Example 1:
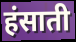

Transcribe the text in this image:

हंसाती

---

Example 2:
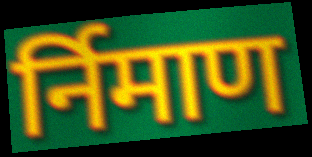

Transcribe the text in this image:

र्निमाण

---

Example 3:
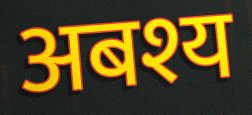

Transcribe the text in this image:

अबश्य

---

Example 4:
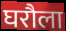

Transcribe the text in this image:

घरौला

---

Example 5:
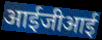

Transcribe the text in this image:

आईजीआई